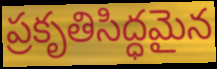
ప్రకృతిసిద్ధమైన